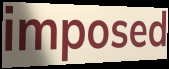
imposed